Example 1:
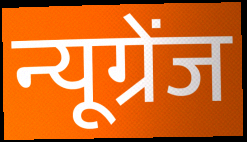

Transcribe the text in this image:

न्यूग्रेंज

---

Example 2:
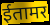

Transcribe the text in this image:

ईतामर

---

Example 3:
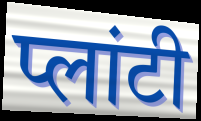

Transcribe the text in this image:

प्लांटी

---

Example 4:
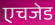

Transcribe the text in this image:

एचजेड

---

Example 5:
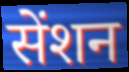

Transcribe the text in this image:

सेंशन